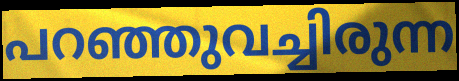
പറഞ്ഞുവച്ചിരുന്ന